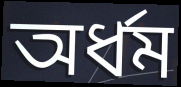
অর্ধম